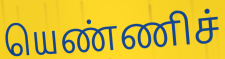
யெண்ணிச்